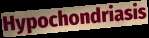
Hypochondriasis